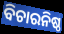
ବିଚାରନିଷ୍ଠ